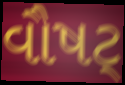
વૌષટ્